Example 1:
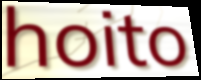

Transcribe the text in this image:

hoito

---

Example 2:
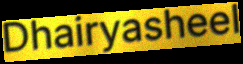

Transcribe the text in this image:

Dhairyasheel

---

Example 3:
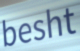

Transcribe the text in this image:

besht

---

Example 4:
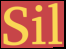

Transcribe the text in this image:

Sil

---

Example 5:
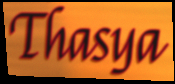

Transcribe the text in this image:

Thasya